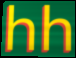
hh